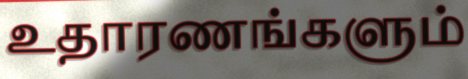
உதாரணங்களும்